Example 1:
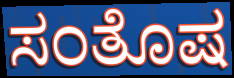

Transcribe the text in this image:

ಸಂತೊಷ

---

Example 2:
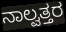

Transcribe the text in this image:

ನಾಲ್ವತ್ತರ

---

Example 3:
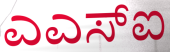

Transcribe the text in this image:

ಎಎಸ್ಐ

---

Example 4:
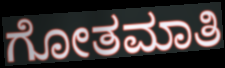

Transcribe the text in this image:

ಗೋತಮಾತಿ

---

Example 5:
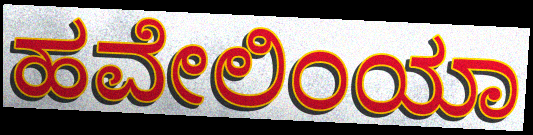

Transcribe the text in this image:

ಹವೇಲಿಂಯಾ